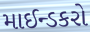
માઈન્ડકરો